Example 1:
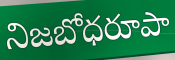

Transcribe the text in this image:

నిజబోధరూపా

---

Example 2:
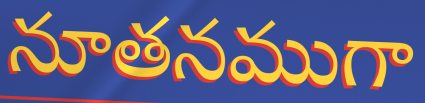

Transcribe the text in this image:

నూతనముగా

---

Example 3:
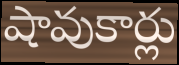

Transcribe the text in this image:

షావుకార్లు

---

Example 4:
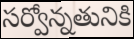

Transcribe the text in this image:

సర్వోన్నతునికి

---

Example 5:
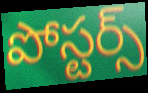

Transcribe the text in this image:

పోస్టర్స్